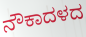
ನೌಕಾದಳದ